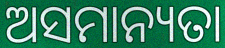
ଅସମାନ୍ୟତା